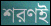
শরণই